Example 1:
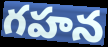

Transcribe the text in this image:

గహన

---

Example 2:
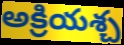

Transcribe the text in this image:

అక్రియశ్చ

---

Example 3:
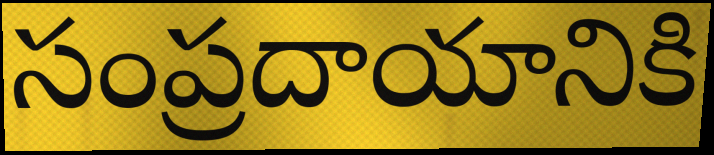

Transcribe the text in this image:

సంప్రదాయానికి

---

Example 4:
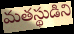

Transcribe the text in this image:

మతస్థుడిని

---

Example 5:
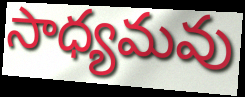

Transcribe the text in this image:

సాధ్యమవు